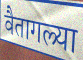
वैतागल्या